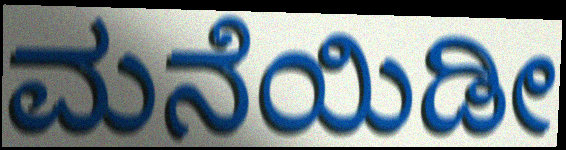
ಮನೆಯಿಡೀ